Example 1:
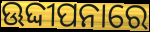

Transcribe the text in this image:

ଊଦ୍ଦୀପନାରେ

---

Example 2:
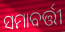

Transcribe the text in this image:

ସମାବର୍ତ୍ତୀ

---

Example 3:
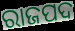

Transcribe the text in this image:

ରାଜପଦ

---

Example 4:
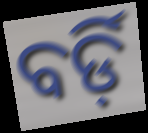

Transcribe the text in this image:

ବର୍ଡ଼ି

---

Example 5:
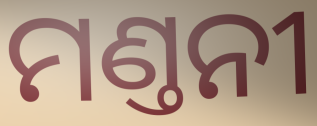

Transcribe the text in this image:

ମଣ୍ତନୀ